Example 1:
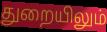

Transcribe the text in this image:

துறையிலும்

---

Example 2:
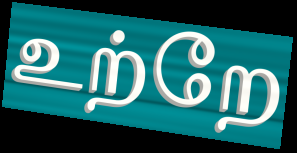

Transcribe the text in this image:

உற்றே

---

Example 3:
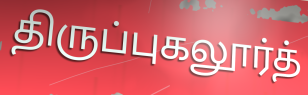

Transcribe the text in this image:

திருப்புகலூர்த்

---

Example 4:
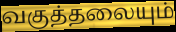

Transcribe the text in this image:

வகுத்தலையும்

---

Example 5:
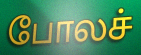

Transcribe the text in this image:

போலச்